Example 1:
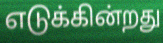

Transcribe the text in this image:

எடுக்கின்றது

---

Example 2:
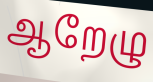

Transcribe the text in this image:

ஆறேழு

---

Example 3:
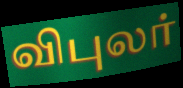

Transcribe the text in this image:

விபுலர்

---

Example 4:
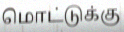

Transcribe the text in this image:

மொட்டுக்கு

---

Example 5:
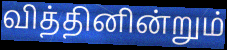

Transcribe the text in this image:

வித்தினின்றும்